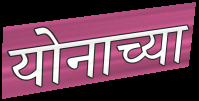
योनाच्या